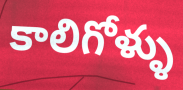
కాలిగోళ్ళు